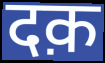
दक़